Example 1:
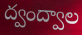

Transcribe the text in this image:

ద్వంద్వాల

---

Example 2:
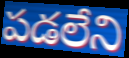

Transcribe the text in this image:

పడలేని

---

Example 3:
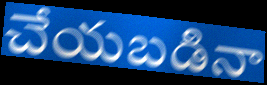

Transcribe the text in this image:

చేయబడినా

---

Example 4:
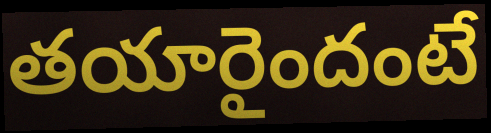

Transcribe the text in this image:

తయారైందంటే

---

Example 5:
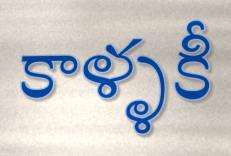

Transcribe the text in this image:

కాళ్ళకీ